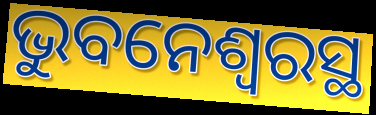
ଭୁବନେଶ୍ଵରସ୍ଥ